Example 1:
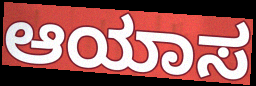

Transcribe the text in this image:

ಆಯಾಸ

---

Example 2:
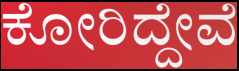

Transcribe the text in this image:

ಕೋರಿದ್ದೇವೆ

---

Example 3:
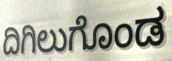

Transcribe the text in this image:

ದಿಗಿಲುಗೊಂಡ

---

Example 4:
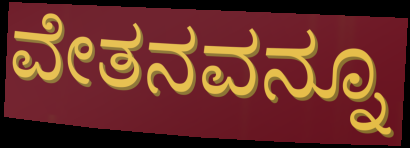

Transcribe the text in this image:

ವೇತನವನ್ನೂ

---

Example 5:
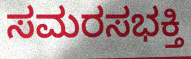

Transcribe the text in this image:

ಸಮರಸಭಕ್ತಿ